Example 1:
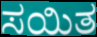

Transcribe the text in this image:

ಸಯಿತ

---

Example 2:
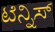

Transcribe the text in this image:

ಟೆನ್ನಿಸ್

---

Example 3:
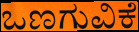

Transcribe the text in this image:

ಒಣಗುವಿಕೆ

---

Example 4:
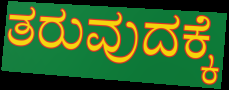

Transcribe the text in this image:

ತರುವುದಕ್ಕೆ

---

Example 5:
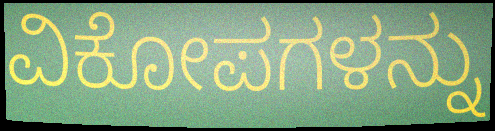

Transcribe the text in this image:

ವಿಕೋಪಗಳನ್ನು